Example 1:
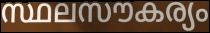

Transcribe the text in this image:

സ്ഥലസൗകര്യം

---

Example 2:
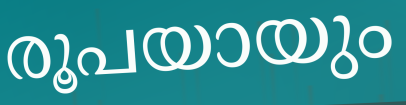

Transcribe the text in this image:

രൂപയായും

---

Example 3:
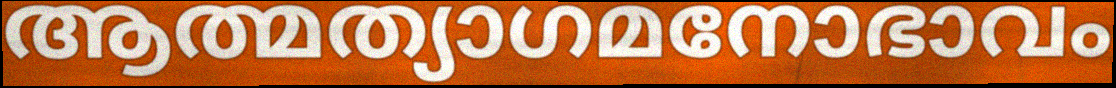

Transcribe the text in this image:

ആത്മത്യാഗമനോഭാവം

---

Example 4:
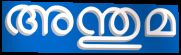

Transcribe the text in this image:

അന്തുമ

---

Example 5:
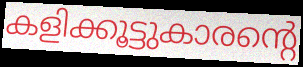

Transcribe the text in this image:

കളിക്കൂട്ടുകാരന്റെ